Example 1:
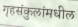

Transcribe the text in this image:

गृहसंकुलांमधील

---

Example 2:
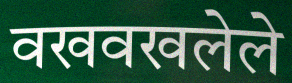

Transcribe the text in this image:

वखवखलेले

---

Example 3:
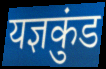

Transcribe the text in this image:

यज्ञकुंड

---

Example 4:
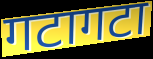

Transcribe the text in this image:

गटागटा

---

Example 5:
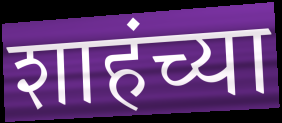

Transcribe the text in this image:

शाहंच्या